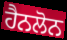
ਹੈਨਲੋਨ